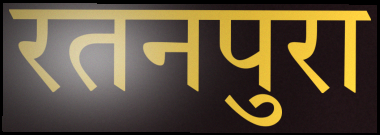
रतनपुरा